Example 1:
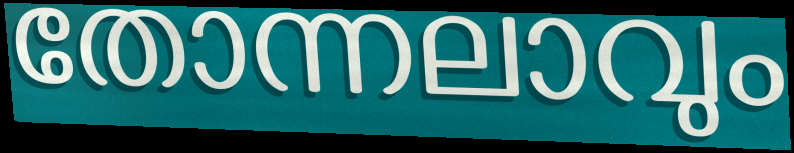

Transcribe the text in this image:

തോന്നലാവും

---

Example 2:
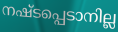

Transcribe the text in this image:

നഷ്ടപ്പെടാനില്ല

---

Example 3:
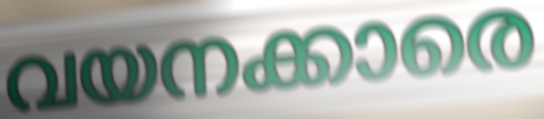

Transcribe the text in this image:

വയനക്കാരെ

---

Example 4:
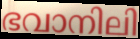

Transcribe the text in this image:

ഭവാനിലി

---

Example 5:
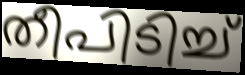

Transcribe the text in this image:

തീപിടിച്ച്